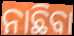
ନାଛିବା